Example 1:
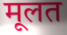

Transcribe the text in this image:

मूलत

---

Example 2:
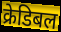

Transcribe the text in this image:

क्रेडिबल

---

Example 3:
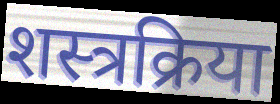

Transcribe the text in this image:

शस्त्रक्रिया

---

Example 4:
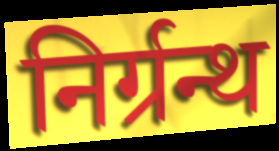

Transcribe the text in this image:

निर्ग्रन्थ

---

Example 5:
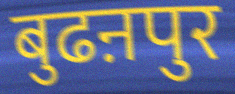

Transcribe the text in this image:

बुढऩपुर